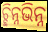
ଚ୍ଛିନ୍ନଭିନ୍ନ